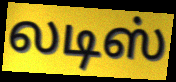
லடிஸ்